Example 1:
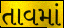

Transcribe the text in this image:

તાવમાં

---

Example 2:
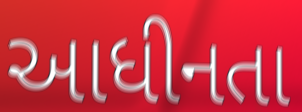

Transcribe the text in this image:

આધીનતા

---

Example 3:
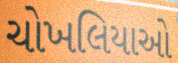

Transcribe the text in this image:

ચોખલિયાઓ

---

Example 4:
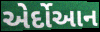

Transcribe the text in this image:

એર્દોઆન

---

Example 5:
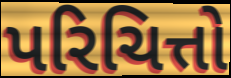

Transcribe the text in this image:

પરિચિત્તો